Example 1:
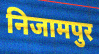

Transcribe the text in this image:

निजामपुर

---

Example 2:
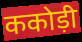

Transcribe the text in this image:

ककोड़ी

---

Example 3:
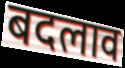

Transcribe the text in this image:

बदलाव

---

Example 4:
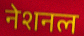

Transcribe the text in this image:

नेशनल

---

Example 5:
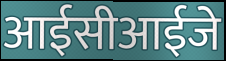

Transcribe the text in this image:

आईसीआईजे